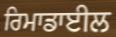
ਰਿਮਾਡਾਈਲ